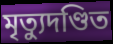
মৃত্যুদণ্ডিত